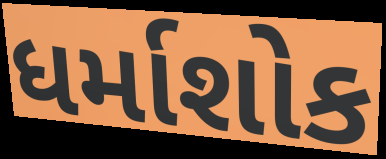
ધર્માશોક